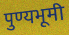
पुण्यभूमी